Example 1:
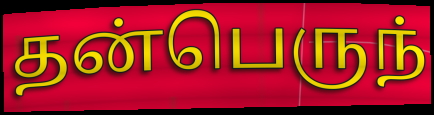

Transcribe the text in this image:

தன்பெருந்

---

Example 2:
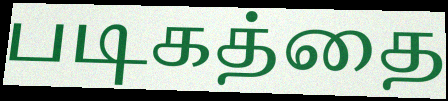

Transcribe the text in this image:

படிகத்தை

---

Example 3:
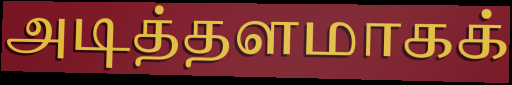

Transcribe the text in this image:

அடித்தளமாகக்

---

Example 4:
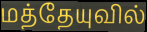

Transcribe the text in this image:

மத்தேயுவில்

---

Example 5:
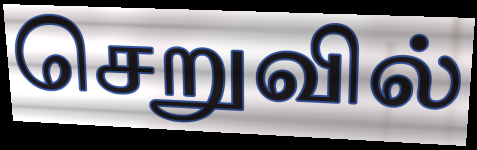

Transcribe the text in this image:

செறுவில்